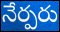
నేర్పరు